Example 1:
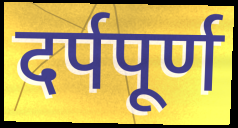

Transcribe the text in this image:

दर्पपूर्ण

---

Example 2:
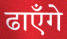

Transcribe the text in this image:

ढाएँगे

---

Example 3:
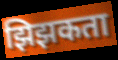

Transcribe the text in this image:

झिझकता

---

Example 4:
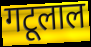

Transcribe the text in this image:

गटूलाल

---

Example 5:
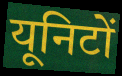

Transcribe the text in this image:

यूनिटों